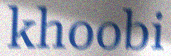
khoobi